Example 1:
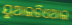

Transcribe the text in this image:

ୟୁଆଇଡିଏଆଇ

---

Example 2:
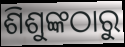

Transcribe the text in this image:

ଶିଶୁଙ୍କଠାରୁ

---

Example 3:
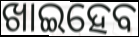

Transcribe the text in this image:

ଖାଇହେବ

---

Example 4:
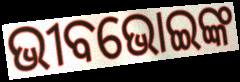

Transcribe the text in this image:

ଭୀବଭୋଇଙ୍କ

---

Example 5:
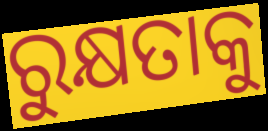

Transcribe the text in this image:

ରୁକ୍ଷତାକୁ